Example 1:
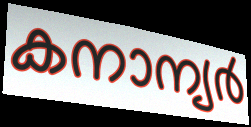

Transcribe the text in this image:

കനാന്യർ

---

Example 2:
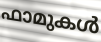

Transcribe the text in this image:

ഫാമുകൾ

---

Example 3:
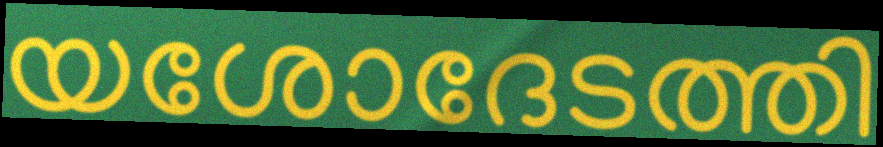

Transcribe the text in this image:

യശോദേടത്തി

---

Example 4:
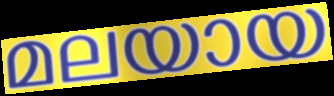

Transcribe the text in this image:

മലയായ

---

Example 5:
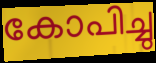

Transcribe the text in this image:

കോപിച്ചു